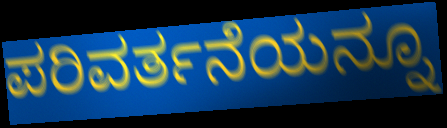
ಪರಿವರ್ತನೆಯನ್ನೂ